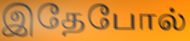
இதேபோல்